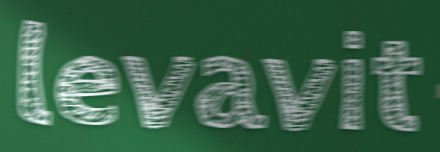
levavit